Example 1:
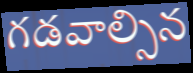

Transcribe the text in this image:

గడవాల్సిన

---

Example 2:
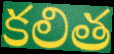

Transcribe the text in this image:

కలిత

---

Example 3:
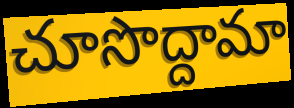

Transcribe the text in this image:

చూసొద్దామా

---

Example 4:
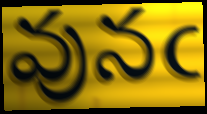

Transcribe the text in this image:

వునఁ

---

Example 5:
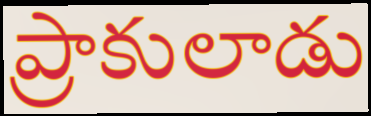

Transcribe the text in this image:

ప్రాకులాడు